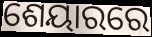
ଶେୟାରରେ